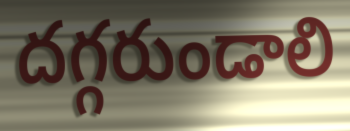
దగ్గరుండాలి